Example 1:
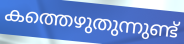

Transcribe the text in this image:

കത്തെഴുതുന്നുണ്ട്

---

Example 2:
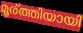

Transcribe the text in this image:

മൂര്ത്തിയായി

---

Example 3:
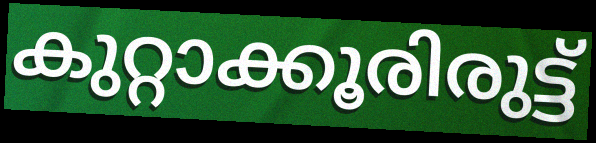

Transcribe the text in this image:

കുറ്റാക്കൂരിരുട്ട്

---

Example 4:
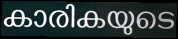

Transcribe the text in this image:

കാരികയുടെ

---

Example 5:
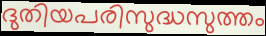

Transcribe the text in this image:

ദുതിയപരിസുദ്ധസുത്തം